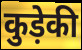
कुड़ेकी